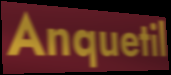
Anquetil